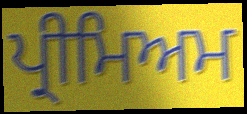
ਪ੍ਰੀਮਿਅਮ